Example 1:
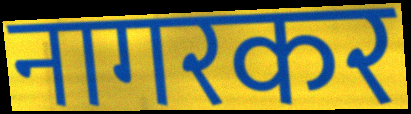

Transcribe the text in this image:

नागरकर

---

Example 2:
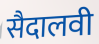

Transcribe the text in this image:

सैदालवी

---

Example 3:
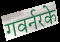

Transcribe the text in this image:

गवर्नरके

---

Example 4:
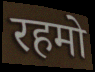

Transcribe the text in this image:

रहमो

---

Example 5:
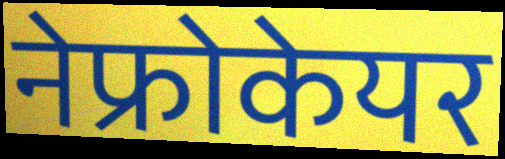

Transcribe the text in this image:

नेफ्रोकेयर